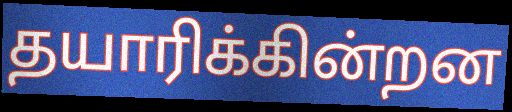
தயாரிக்கின்றன